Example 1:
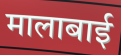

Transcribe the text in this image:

मालाबाई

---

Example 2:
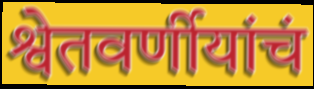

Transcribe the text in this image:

श्वेतवर्णीयांचं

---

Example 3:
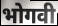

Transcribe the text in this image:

भोगवी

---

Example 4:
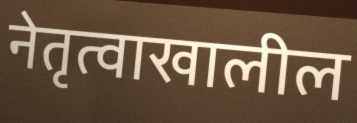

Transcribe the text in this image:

नेतृत्वाखालील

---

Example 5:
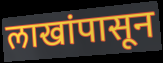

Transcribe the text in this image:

लाखांपासून